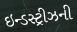
ઇન્ડસ્ટ્રીઝની